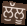
ਲੁੱਲੂ